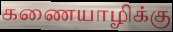
கணையாழிக்கு